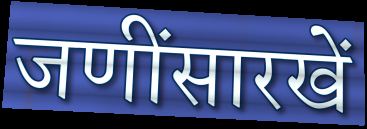
जणींसारखें